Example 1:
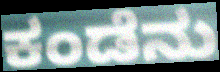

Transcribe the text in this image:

ಕಂಡೆನು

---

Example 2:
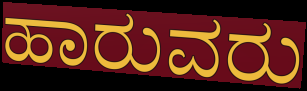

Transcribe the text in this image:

ಹಾರುವರು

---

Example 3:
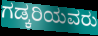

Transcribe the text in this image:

ಗಡ್ಕರಿಯವರು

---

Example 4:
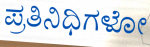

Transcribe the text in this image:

ಪ್ರತಿನಿಧಿಗಳೋ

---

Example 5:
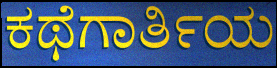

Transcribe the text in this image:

ಕಥೆಗಾರ್ತಿಯ